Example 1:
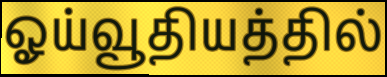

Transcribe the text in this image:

ஓய்வூதியத்தில்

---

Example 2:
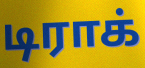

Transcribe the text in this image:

டிராக்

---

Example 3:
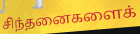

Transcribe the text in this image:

சிந்தனைகளைக்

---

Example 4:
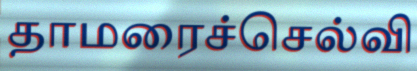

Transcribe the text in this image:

தாமரைச்செல்வி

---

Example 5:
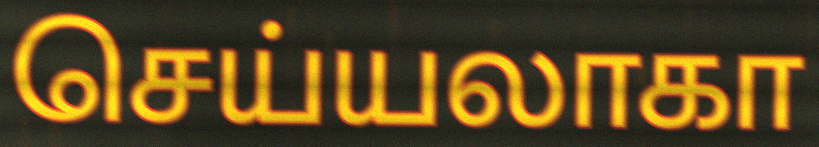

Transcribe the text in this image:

செய்யலாகா